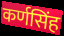
कर्णसिंह